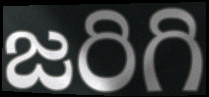
జరిగి